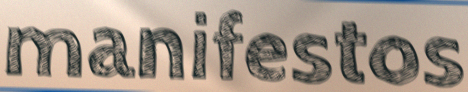
manifestos